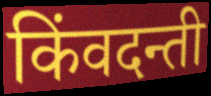
किंवदन्ती